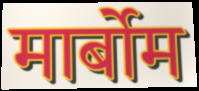
मार्बोम